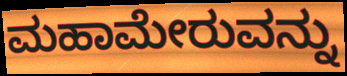
ಮಹಾಮೇರುವನ್ನು